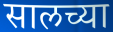
सालच्या